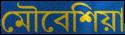
মৌবেশিয়া